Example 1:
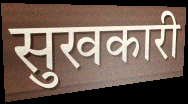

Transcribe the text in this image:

सुखकारी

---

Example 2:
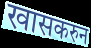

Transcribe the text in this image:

खासकरुन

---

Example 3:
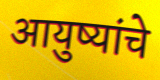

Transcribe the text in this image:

आयुष्यांचे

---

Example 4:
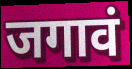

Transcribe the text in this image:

जगावं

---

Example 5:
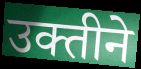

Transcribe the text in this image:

उक्तीने